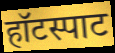
हॉटस्पाट